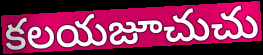
కలయజూచుచు